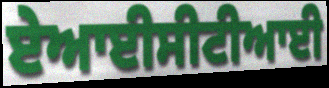
ਏਆਈਸੀਟੀਆਈ